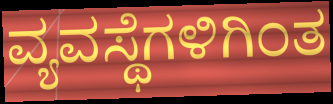
ವ್ಯವಸ್ಥೆಗಳಿಗಿಂತ